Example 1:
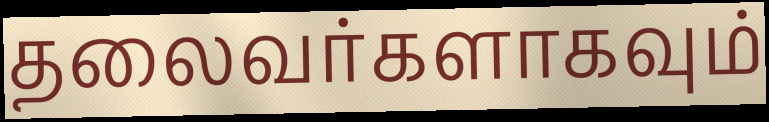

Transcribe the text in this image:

தலைவர்களாகவும்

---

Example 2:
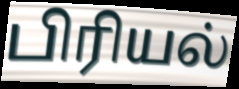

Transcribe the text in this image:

பிரியல்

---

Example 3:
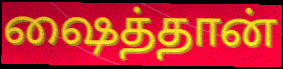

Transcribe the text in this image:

ஷைத்தான்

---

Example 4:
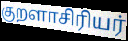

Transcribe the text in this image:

குறளாசிரியர்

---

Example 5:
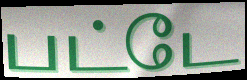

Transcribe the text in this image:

பட்டே